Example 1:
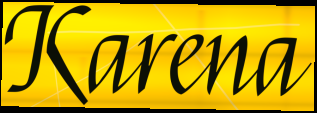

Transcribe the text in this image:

Karena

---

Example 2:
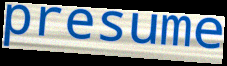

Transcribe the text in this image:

presume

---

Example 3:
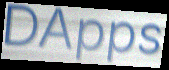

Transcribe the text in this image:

DApps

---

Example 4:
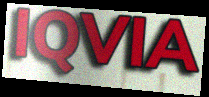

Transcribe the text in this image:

IQVIA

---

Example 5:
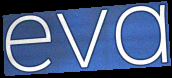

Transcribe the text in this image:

eva